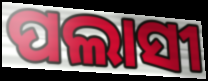
ପଲାସୀ